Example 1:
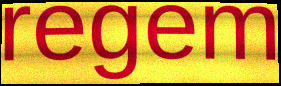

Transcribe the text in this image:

regem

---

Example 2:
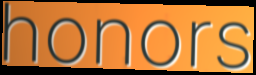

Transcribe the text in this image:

honors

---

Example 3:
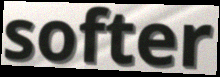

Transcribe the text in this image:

softer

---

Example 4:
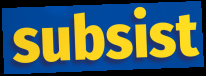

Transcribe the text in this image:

subsist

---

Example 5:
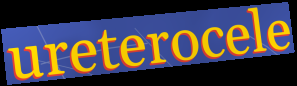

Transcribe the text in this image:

ureterocele